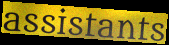
assistants